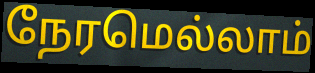
நேரமெல்லாம்